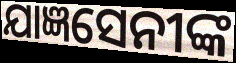
ଯାଜ୍ଞସେନୀଙ୍କ